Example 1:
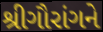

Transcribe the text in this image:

શ્રીગૌરાંગને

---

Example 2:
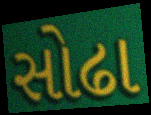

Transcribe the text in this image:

સોઢા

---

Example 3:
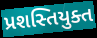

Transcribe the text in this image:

પ્રશસ્તિયુક્ત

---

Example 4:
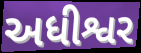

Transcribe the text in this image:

અધીશ્વર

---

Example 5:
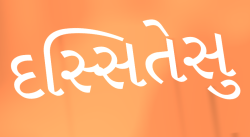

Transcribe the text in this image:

દસ્સિતેસુ